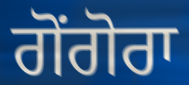
ਗੋਂਗੋਰਾ